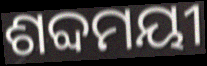
ଶବ୍ଦମୟୀ